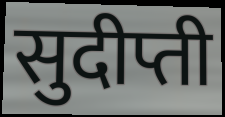
सुदीप्ती